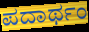
ಪದಾರ್ಥಂ